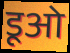
डूओ